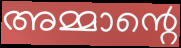
അമ്മാന്റെ